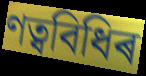
ণত্ববিধিৰ